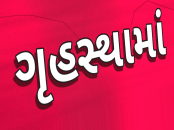
ગૃહસ્થામાં